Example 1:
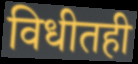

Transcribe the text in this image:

विधीतही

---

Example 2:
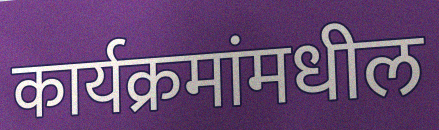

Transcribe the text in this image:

कार्यक्रमांमधील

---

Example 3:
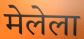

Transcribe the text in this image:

मेलेला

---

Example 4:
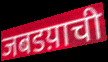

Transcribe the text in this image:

जबडय़ाची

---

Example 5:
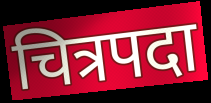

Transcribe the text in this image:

चित्रपदा